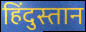
हिंदुस्तान